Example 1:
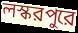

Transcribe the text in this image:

লস্করপুরে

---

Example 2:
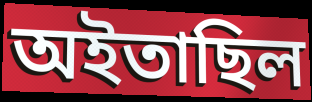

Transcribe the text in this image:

অইতাছিল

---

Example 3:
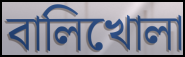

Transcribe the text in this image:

বালিখোলা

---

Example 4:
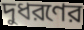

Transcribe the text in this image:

দুধরণের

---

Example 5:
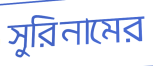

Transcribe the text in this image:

সুরিনামের